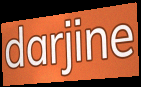
darjine